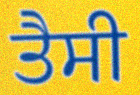
ਤੈਸੀ